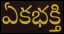
ఏకభక్తి